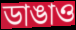
ডাঙাও